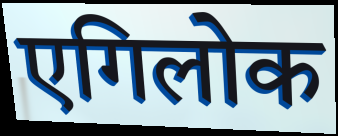
एगिलोक